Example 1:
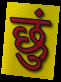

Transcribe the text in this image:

छुं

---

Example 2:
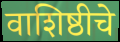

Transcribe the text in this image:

वाशिष्ठीचे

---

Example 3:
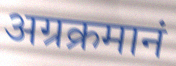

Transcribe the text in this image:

अग्रक्रमानं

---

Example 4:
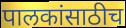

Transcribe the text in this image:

पालकांसाठीच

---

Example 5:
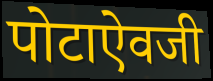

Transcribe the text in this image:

पोटाऐवजी